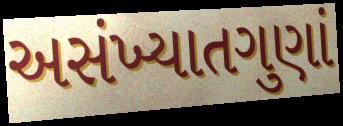
અસંખ્યાતગુણાં